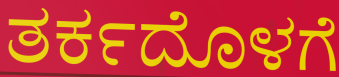
ತರ್ಕದೊಳಗೆ